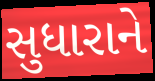
સુધારાને